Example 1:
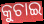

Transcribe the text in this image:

କୁଚାଇ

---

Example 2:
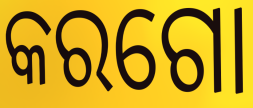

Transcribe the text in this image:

କରଗୋ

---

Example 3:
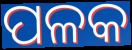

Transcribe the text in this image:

ପଳକ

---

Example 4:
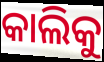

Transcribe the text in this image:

କାଲିକୁ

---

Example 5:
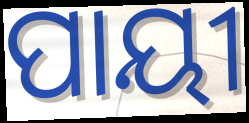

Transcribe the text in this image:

ପାୟୀ